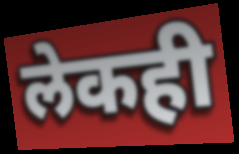
लेकही